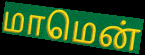
மாமென்